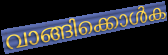
വാങ്ങിക്കൊൾക